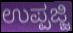
ಉಪ್ಪಜ್ಜಿ